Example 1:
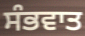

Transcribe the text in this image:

ਸੰਭਵਾਤ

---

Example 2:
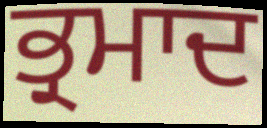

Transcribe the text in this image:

ਭ੍ਰਮਾਦ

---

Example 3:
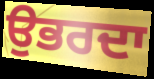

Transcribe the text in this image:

ਉਭਰਦਾ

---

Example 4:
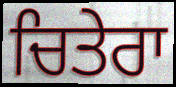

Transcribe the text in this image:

ਚਿਤੇਰਾ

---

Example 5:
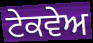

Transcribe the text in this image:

ਟੇਕਵੇਅ